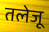
तलेजू